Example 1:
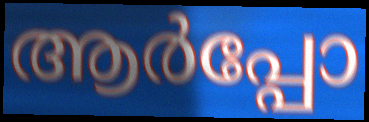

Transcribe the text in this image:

ആർപ്പോ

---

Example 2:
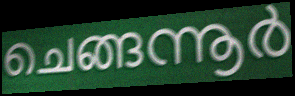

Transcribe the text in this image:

ചെങ്ങന്നൂർ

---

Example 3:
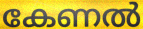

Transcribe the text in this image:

കേണൽ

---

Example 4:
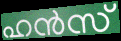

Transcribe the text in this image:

ഹൻസ്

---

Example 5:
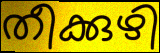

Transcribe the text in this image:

തീക്കുഴി